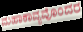
ಮಹಾಕಾವ್ಯವೊಂದರ